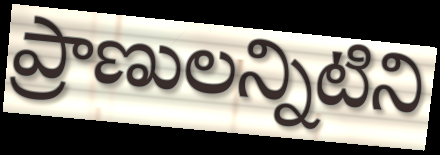
ప్రాణులన్నిటిని